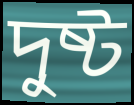
দুষ্ট